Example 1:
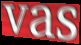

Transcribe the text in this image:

vas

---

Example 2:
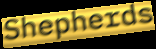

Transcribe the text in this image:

Shepherds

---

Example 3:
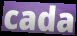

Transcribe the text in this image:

cada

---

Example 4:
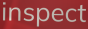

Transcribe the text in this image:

inspect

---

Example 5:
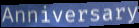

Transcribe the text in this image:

Anniversary